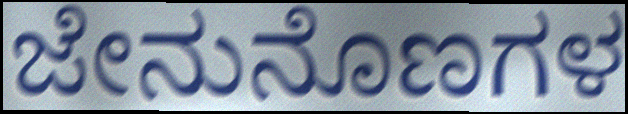
ಜೇನುನೊಣಗಳ